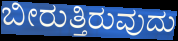
ಬೀರುತ್ತಿರುವುದು